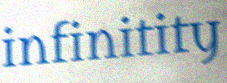
infinitity